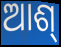
ଆଶ୍